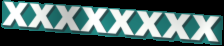
XXXXXXXX